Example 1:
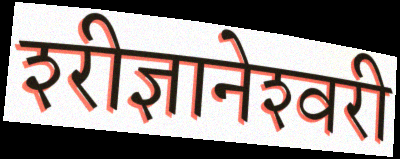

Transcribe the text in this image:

श्रीज्ञानेश्वरी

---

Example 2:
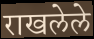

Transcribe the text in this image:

राखलेले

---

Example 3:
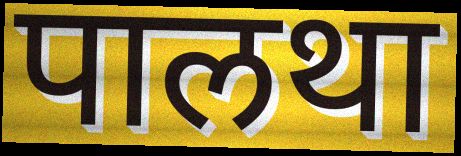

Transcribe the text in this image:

पालथा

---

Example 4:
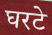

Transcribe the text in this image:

घरटे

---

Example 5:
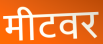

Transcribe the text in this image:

मीटवर